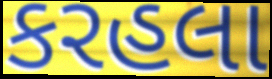
કરહલા